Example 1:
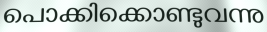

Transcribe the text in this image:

പൊക്കിക്കൊണ്ടുവന്നു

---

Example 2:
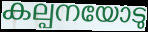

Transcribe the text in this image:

കല്പനയോടു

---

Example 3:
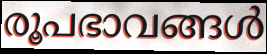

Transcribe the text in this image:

രൂപഭാവങ്ങൾ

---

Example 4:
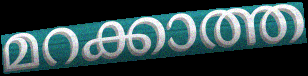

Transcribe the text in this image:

മറക്കാത്ത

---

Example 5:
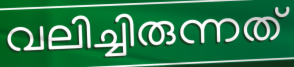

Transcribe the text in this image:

വലിച്ചിരുന്നത്